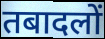
तबादलों